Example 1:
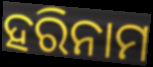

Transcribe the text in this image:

ହରିନାମ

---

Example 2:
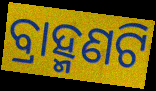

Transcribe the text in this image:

ବ୍ରାହ୍ମଣଟି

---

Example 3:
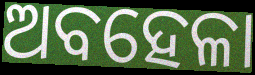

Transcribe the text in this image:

ଅବହେଳା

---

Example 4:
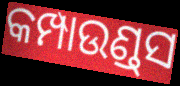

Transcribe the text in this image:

କମ୍ପାଉଣ୍ଡ୍‌ସ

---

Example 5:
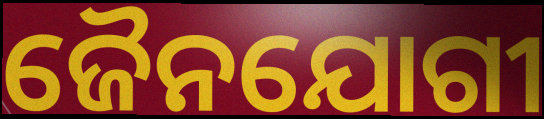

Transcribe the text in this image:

ଜୈନଯୋଗୀ